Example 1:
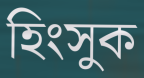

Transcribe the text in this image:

হিংসুক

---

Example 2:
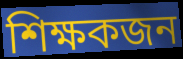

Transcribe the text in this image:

শিক্ষকজন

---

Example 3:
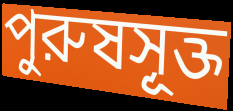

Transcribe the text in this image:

পুৰুষসূক্ত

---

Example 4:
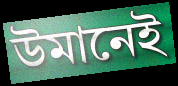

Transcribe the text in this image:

উমানেই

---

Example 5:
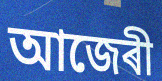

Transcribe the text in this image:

আজেৰী